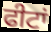
ਫੀਟਾਂ